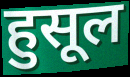
हुसूल